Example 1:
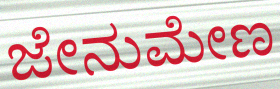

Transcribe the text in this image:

ಜೇನುಮೇಣ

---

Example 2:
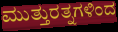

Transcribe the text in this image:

ಮುತ್ತುರತ್ನಗಳಿಂದ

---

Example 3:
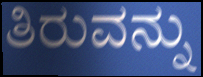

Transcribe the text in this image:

ತಿರುವನ್ನು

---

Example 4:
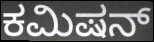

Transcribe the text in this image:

ಕಮಿಷನ್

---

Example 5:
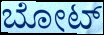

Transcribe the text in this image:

ಬೋಟ್